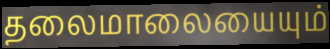
தலைமாலையையும்